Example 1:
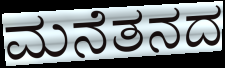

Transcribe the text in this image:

ಮನೆತನದ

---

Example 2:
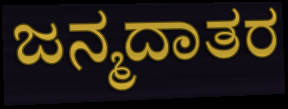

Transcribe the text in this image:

ಜನ್ಮದಾತರ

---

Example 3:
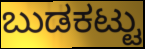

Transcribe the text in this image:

ಬುಡಕಟ್ಟು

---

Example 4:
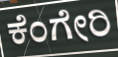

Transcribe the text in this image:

ಕೆಂಗೇರಿ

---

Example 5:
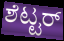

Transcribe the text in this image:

ಶೆಟ್ಟರ್